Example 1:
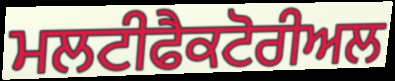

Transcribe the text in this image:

ਮਲਟੀਫੈਕਟੋਰੀਅਲ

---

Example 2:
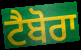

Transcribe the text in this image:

ਟੈਬੋਰਾ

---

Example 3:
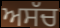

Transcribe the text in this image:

ਅਸੱਚ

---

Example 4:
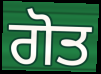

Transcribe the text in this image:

ਗੋਤ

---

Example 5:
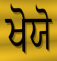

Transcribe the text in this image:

ਖੋਯੋ